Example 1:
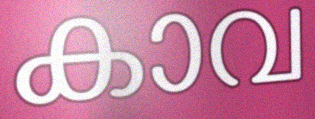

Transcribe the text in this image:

കാവ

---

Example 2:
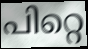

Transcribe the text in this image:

പിറ്റെ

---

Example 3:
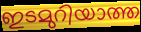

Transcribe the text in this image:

ഇടമുറിയാത്ത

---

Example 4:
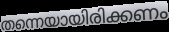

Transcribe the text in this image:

തന്നെയായിരിക്കണം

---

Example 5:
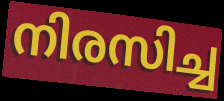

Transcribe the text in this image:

നിരസിച്ച